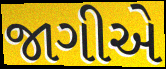
જાગીએ